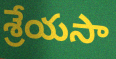
శ్రేయసా